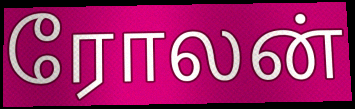
ரோலன்